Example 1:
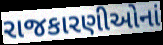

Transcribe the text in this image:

રાજકારણીઓનાં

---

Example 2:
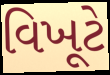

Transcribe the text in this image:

વિખૂટે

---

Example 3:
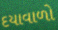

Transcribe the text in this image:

દયાવાળો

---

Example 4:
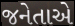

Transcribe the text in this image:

જનેતાએ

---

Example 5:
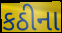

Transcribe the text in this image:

કઠીના